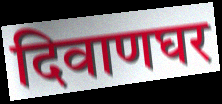
दिवाणघर